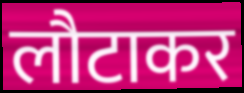
लौटाकर